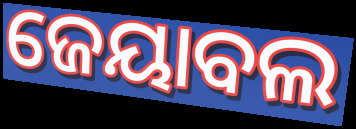
ଜେୟାବଲ